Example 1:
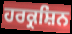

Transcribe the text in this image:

ਹਰਕ੍ਰਸ਼ਿਨ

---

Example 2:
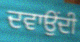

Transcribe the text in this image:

ਦਵਾਉਂਦੀ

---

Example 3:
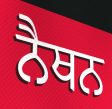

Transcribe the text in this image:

ਨੈਥਨ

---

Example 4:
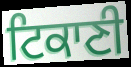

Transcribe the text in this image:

ਟਿਕਾਣੀ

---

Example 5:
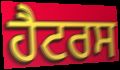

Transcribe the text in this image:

ਹੈਟਰਸ